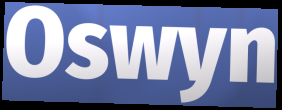
Oswyn